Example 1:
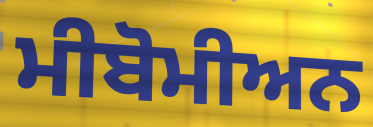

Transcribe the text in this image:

ਮੀਬੋਮੀਅਨ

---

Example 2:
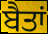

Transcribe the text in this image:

ਬੈਤਾਂ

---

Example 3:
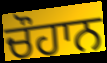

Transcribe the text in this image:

ਚੌਹਾਨ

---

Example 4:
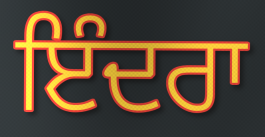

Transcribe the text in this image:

ਇੰਦਰਾ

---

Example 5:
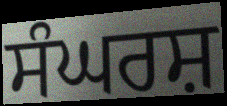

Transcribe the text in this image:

ਸੰਘਰਸ਼